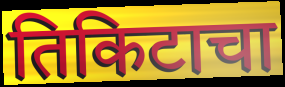
तिकिटाचा